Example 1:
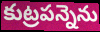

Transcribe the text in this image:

కుట్రపన్నెను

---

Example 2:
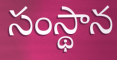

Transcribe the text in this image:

సంస్థాన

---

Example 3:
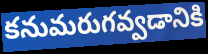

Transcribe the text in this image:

కనుమరుగవ్వడానికి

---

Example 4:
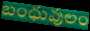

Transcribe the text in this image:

బంధువులం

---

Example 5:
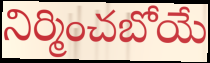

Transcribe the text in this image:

నిర్మించబోయే